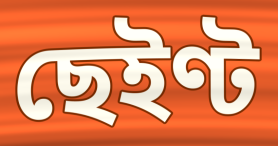
ছেইণ্ট